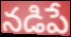
నడిపే